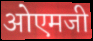
ओएमजी